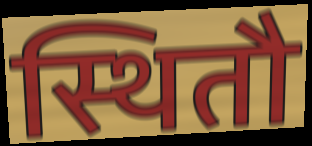
स्थितौ